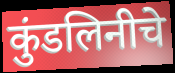
कुंडलिनीचे